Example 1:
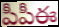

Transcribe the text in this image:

పీపీఈ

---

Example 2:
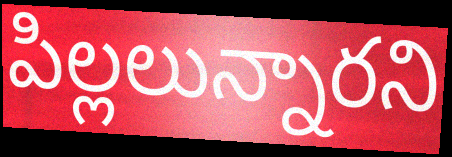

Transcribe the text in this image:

పిల్లలున్నారని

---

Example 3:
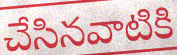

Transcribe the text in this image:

చేసినవాటికి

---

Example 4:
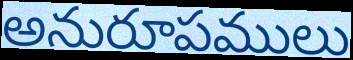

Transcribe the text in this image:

అనురూపములు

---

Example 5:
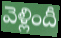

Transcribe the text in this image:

వెళ్లిందీ